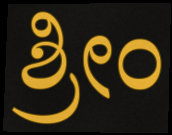
ಶ್ರೀಂ